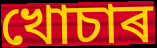
খোচাৰ